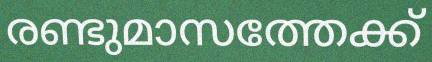
രണ്ടുമാസത്തേക്ക്